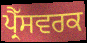
ਪ੍ਰੈੱਸਵਰਕ